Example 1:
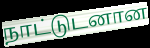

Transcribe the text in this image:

நாட்டுடனான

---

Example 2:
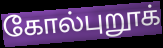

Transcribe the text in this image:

கோல்புறூக்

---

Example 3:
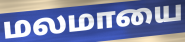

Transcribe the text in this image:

மலமாயை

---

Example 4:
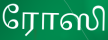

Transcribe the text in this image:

ரோஸி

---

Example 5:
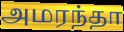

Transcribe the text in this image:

அமரந்தா